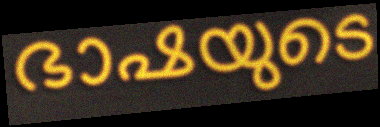
ഭാഷയുടെ